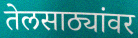
तेलसाठ्यांवर